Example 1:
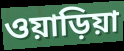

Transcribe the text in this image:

ওয়াড়িয়া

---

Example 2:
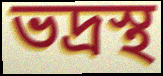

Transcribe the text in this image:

ভদ্রস্থ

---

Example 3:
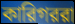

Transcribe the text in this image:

কারিগররা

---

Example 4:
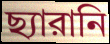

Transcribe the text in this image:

ছ্যারানি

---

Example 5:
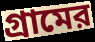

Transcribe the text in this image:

গ্রামের